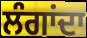
ਲੰਗਾਂਦਾ